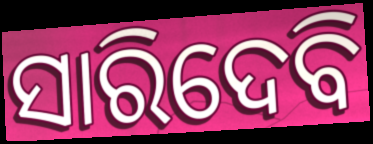
ସାରିଦେବି